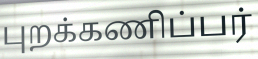
புறக்கணிப்பர்